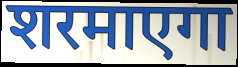
शरमाएगा